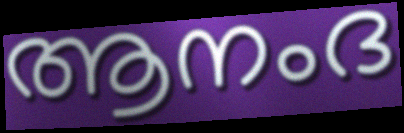
ആനംദ